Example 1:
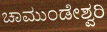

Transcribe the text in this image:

ಚಾಮುಂಡೇಶ್ವರಿ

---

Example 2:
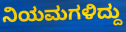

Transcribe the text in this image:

ನಿಯಮಗಳಿದ್ದು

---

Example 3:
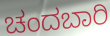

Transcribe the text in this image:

ಚಂದಬಾರಿ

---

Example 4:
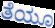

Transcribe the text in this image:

ತೆಯೂ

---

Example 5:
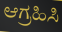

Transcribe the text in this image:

ಆಗ್ರಹಿಸಿ